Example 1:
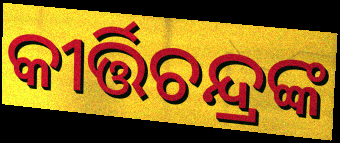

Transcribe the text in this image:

କୀର୍ତ୍ତିଚନ୍ଦ୍ରଙ୍କ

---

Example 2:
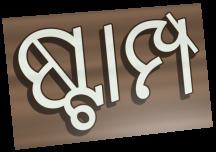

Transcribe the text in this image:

ଷ୍ଟାମ୍ପ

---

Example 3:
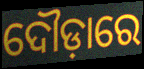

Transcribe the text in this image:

ଦୌଡ଼ାରେ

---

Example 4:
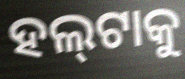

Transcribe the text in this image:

ହଲ୍‌ଟାକୁ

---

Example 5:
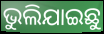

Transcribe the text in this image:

ଭୁଲିଯାଇଛୁ